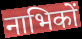
नाभिकों